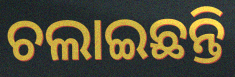
ଚଲାଇଛନ୍ତି